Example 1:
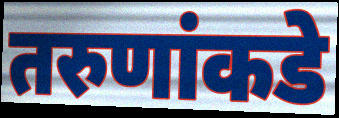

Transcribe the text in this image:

तरुणांकडे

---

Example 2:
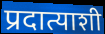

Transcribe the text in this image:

प्रदात्याशी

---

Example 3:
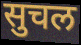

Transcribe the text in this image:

सुचल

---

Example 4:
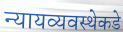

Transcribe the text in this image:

न्यायव्यवस्थेकडे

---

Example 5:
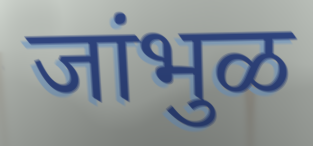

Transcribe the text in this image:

जांभुळ